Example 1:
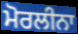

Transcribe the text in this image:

ਮੋਰਲੀਨਾ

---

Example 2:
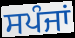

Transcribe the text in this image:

ਸਪੰਜਾਂ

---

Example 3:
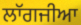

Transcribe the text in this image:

ਲਾੱਗਜੀਆ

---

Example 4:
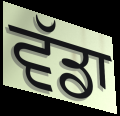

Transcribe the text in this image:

ਵੱਡਾ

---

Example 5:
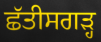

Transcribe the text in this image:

ਛੱਤੀਸਗੜ੍ਹ